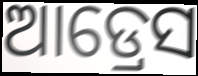
ଆଡ୍ରେସ